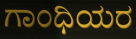
ಗಾಂಧಿಯರ